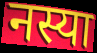
नस्या